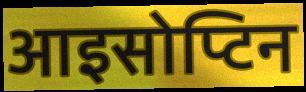
आइसोप्टिन